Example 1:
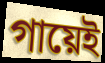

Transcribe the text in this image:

গায়েই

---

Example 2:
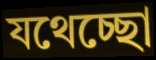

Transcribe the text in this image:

যথেচ্ছো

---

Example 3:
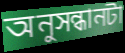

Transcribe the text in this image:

অনুসন্ধানটা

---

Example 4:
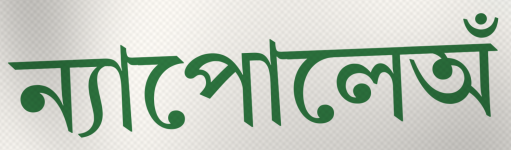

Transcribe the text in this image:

ন্যাপোলেঅঁ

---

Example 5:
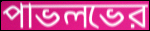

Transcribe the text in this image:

পাভলভের